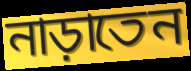
নাড়াতেন